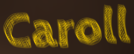
Caroll